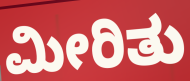
ಮೀರಿತು